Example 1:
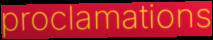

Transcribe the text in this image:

proclamations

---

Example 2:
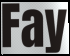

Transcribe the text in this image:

Fay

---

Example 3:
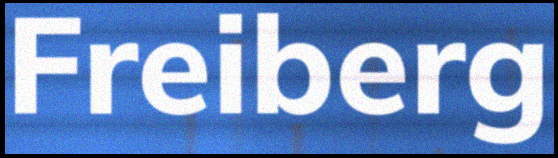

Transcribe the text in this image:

Freiberg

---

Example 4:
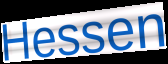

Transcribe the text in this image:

Hessen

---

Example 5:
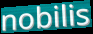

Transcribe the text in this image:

nobilis